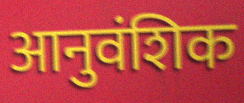
आनुवंशिक